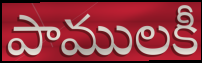
పాములకీ